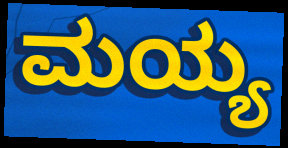
ಮಯ್ಯ